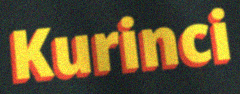
Kurinci